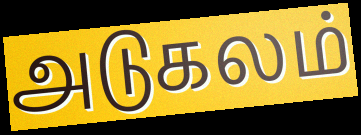
அடுகலம்